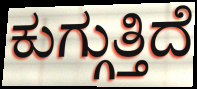
ಕುಗ್ಗುತ್ತಿದೆ